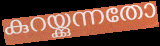
കുറയ്ക്കുന്നതോ